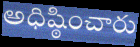
అధిష్ఠించారు